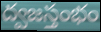
ద్వజస్తంభం